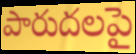
పారుదలపై